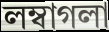
লম্বাগলা